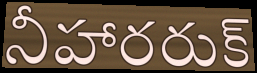
నీహారరుక్